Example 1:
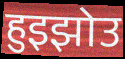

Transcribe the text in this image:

हुइझोउ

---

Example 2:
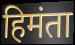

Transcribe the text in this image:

हिमंता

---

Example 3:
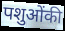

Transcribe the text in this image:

पशुओंकी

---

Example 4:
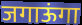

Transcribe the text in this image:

जगाऊंगा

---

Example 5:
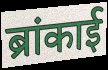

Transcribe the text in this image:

ब्रांकाई